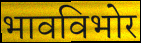
भावविभोर